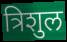
त्रिशुल